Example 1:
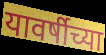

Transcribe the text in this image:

यावर्षीच्या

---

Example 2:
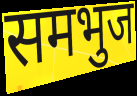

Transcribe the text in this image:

समभुज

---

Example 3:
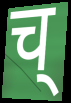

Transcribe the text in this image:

च्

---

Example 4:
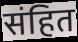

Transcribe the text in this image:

संहित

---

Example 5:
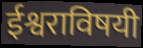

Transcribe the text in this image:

ईश्वराविषयी